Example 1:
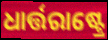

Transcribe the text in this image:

ଧାର୍ତ୍ତରାଷ୍ଟ୍ରେ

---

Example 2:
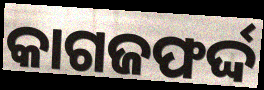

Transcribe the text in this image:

କାଗଜଫର୍ଦ୍ଦ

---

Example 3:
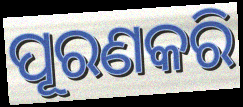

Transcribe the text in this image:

ପୂରଣକରି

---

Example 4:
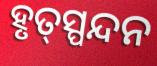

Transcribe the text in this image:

ହୃତ୍‌ସ୍ପନ୍ଦନ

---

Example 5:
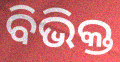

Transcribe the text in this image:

ବିଭିକ୍ତ